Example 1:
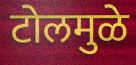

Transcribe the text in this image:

टोलमुळे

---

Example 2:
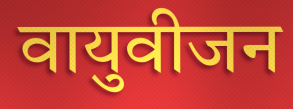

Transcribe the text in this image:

वायुवीजन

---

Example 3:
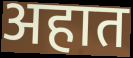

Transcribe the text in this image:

अहात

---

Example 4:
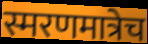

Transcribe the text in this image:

स्मरणमात्रेच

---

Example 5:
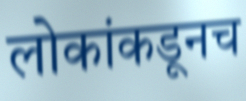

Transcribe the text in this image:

लोकांकडूनच